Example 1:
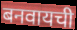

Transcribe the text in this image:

बनवायची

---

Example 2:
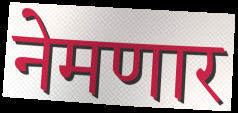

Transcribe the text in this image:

नेमणार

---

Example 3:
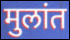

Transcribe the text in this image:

मुलांत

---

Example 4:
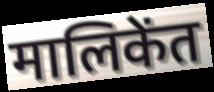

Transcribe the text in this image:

मालिकेंत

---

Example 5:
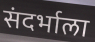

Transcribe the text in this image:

संदर्भाला